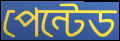
পেন্টেড